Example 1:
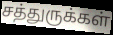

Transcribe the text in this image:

சத்துருக்கள்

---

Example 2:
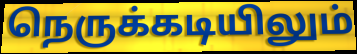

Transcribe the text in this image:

நெருக்கடியிலும்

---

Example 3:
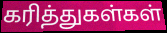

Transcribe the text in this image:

கரித்துகள்கள்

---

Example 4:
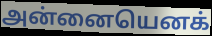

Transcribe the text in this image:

அன்னையெனக்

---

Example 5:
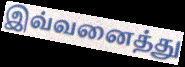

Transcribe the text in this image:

இவ்வனைத்து